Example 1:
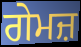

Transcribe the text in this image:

ਗੇਮਜ਼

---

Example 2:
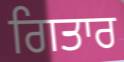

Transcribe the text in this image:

ਗਿਤਾਰ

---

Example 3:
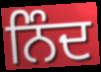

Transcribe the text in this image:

ਨਿੰਦ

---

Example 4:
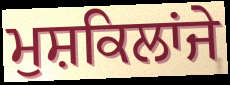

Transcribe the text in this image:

ਮੁਸ਼ਕਿਲਾਂਜੇ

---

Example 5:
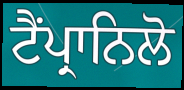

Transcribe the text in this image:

ਟੈਂਪ੍ਰਾਨਿਲੋ